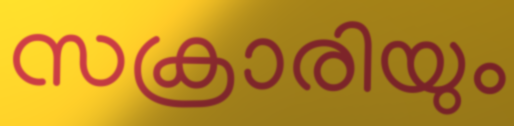
സക്രാരിയും